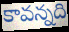
కావన్నది